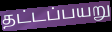
தட்டப்பயறு